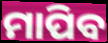
ମାପିବ